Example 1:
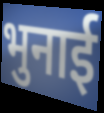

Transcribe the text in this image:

भुनाई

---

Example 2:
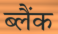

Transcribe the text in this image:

ब्लैंक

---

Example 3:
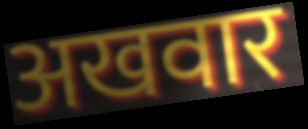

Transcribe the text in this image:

अखवार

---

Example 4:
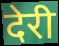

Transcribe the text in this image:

देरी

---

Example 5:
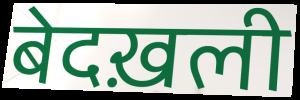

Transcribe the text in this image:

बेदख़ली